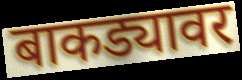
बाकड्यावर